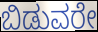
ಬಿಡುವರೇ